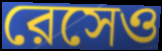
রেসেও